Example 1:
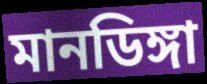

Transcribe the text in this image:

মানডিঙ্গা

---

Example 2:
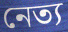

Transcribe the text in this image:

নেত্য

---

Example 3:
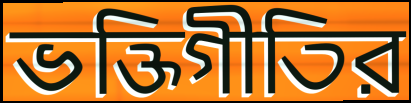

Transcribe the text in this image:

ভক্তিগীতির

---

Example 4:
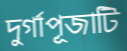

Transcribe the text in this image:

দুর্গাপূজাটি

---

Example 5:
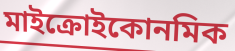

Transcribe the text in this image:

মাইক্রোইকোনমিক